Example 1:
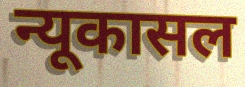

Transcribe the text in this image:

न्यूकासल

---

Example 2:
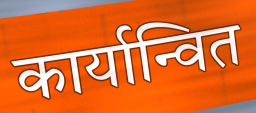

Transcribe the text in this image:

कार्यान्वित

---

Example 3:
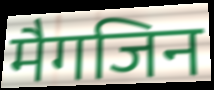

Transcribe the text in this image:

मैगजिन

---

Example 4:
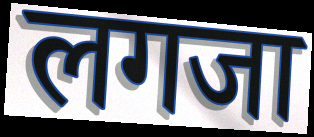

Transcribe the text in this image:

लगजा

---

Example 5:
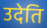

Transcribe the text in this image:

उदेति